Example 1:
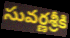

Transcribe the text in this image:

సువర్ణశ్రీకి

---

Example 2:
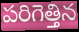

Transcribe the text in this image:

పరిగెత్తిన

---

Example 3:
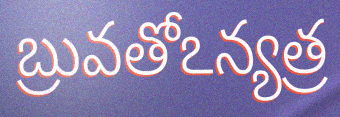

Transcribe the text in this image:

బ్రువతోఽన్యత్ర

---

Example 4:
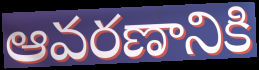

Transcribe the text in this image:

ఆవరణానికి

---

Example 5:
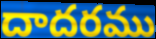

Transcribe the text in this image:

దాదరము